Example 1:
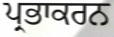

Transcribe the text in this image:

ਪ੍ਰਭਾਕਰਨ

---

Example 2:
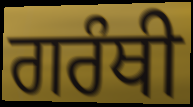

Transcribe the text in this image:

ਗਰੰਥੀ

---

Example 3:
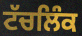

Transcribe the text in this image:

ਟੱਚਲਿੰਕ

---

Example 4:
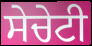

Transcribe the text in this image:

ਸੇਚੇਟੀ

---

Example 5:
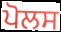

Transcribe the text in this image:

ਪੋਲਸ